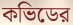
কভিডের